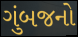
ગુંબજનો